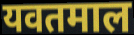
यवतमाल